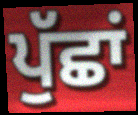
ਪੁੱਛਾਂ